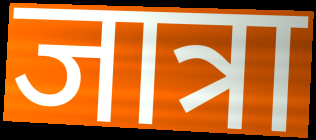
जात्रा